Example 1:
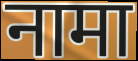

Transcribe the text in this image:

नामा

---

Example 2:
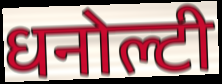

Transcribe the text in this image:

धनोल्‍टी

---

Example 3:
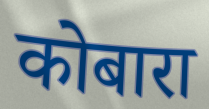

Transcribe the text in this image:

कोबारा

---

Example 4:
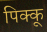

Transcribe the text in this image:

पिक्कू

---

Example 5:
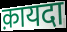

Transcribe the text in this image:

क़ायदा